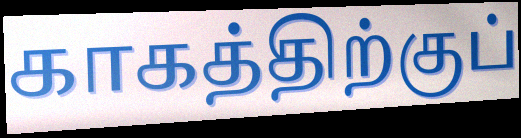
காகத்திற்குப்